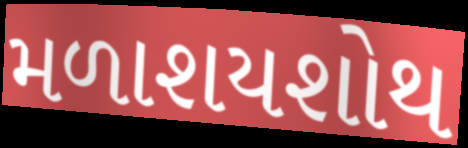
મળાશયશોથ